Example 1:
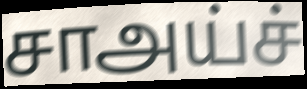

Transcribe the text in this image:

சாஅய்ச்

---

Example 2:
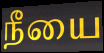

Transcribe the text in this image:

நீயை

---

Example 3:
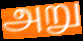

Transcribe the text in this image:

அறு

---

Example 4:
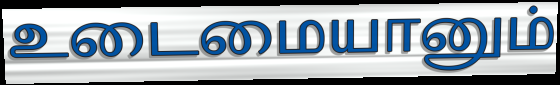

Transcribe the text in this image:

உடைமையானும்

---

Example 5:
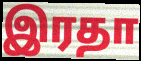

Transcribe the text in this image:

இரதா